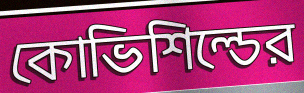
কোভিশিল্ডের